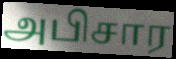
அபிசார